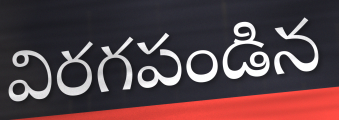
విరగపండిన